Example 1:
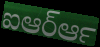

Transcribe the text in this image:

ఐఆర్ఆర్‍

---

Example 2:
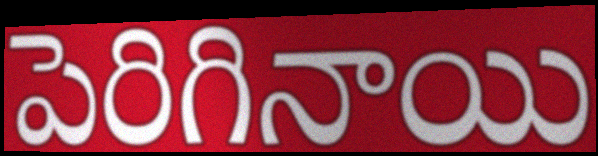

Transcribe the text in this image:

పెరిగినాయి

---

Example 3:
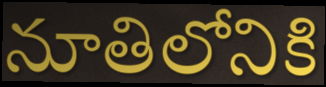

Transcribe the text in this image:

నూతిలోనికి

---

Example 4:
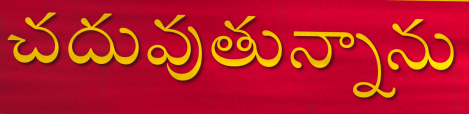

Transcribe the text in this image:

చదువుతున్నాను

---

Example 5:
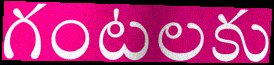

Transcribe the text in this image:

గంటలకు